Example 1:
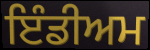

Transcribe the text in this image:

ਇੰਡੀਅਮ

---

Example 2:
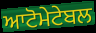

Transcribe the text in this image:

ਆਟੋਮੇਟੇਬਲ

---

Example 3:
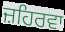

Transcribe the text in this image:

ਜ਼ਹਿਰਵਾ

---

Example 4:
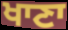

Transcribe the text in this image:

ਖਾਣਾ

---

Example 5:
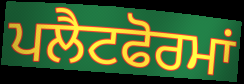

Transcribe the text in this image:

ਪਲੈਟਫੋਰਮਾਂ